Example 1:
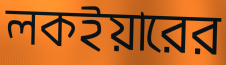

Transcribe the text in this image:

লকইয়ারের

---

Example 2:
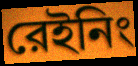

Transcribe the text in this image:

রেইনিং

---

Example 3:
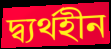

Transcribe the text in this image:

দ্ব্যর্থহীন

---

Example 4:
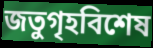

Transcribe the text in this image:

জতুগৃহবিশেষ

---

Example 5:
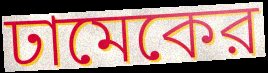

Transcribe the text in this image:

ঢামেকের